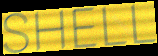
SHELL